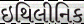
ઇથિલીનિક